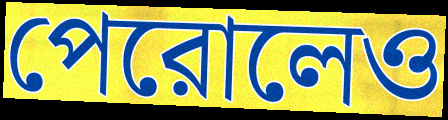
পেরোলেও